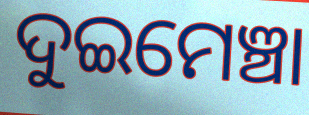
ଦୁଇମେଞ୍ଚା